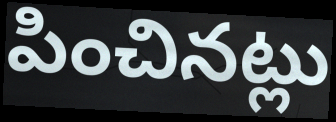
పించినట్లు